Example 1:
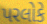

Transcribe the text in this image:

પરલોકે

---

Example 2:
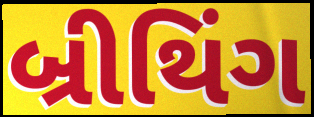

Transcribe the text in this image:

બ્રીથિંગ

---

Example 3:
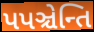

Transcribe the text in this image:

પપઞ્ચેન્તિ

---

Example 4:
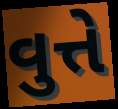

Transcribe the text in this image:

વુત્તે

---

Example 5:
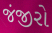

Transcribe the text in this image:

જંજીરો